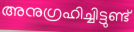
അനുഗ്രഹിച്ചിട്ടുണ്ട്